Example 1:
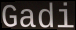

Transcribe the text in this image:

Gadi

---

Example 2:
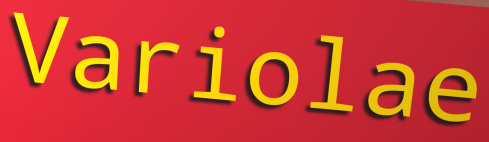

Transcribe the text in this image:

Variolae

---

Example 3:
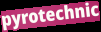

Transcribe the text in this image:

pyrotechnic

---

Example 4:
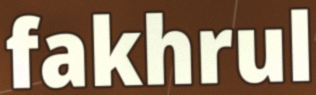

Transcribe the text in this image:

fakhrul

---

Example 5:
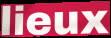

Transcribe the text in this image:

lieux